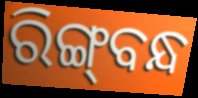
ରିଙ୍ଗ୍‌ବନ୍ଧ